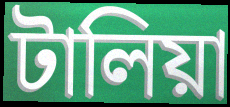
টালিয়া